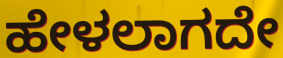
ಹೇಳಲಾಗದೇ